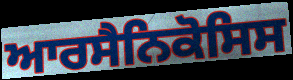
ਆਰਸੈਨਿਕੋਸਿਸ